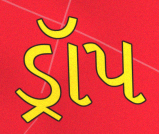
ડ્રૉપ